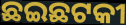
ଛଇଛଟକୀ